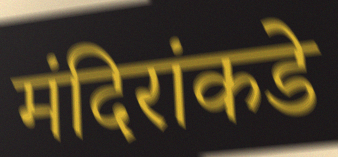
मंदिरांकडे